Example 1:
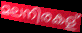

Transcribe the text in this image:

മലനിരകള്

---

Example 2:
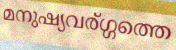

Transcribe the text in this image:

മനുഷ്യവര്ഗ്ഗത്തെ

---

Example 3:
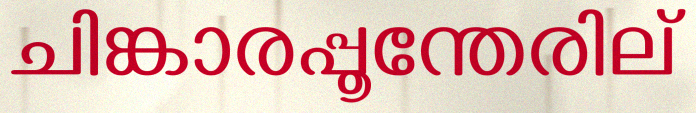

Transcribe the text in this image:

ചിങ്കാരപ്പൂന്തേരില്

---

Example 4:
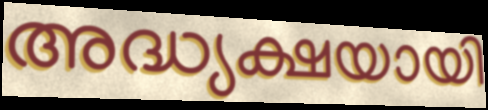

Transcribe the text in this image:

അദ്ധ്യക്ഷയായി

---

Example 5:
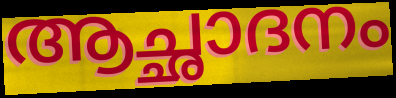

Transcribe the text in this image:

ആച്ഛാദനം